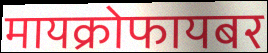
मायक्रोफायबर